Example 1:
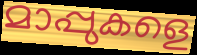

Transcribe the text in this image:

മാപ്പുകളെ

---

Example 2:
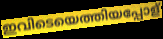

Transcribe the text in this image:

ഇവിടെയെത്തിയപ്പോള്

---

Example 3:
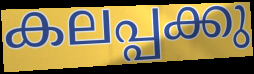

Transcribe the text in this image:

കലപ്പക്കു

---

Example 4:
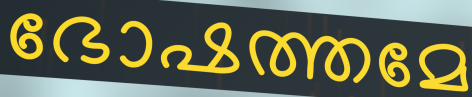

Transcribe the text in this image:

ഭോഷത്തമേ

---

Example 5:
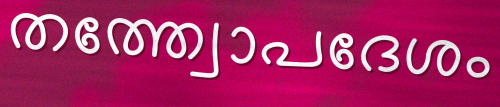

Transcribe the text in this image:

തത്ത്വോപദേശം